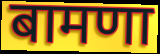
बामणा